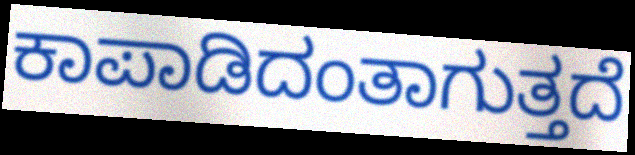
ಕಾಪಾಡಿದಂತಾಗುತ್ತದೆ